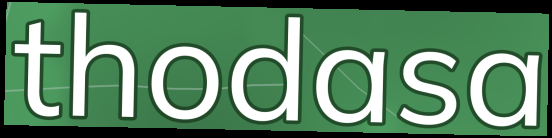
thodasa